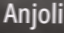
Anjoli